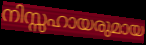
നിസ്സഹായരുമായ